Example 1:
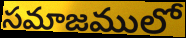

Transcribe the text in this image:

సమాజములో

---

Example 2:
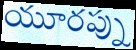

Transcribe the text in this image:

యూరప్ను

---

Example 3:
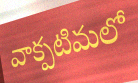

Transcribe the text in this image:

వాక్పటిమలో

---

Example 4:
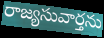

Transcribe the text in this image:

రాజ్యసువార్తను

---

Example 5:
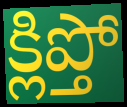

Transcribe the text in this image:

క్లిప్తో